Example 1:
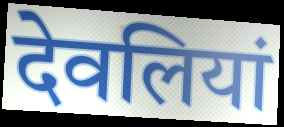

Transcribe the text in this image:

देवलियां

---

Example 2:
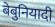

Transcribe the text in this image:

बेबुनियादी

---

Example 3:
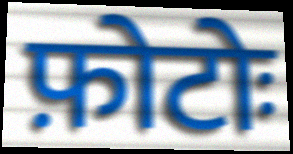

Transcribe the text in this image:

फ़ोटोः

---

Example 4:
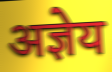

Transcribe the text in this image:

अज्ञेय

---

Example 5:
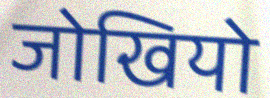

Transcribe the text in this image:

जोखियो